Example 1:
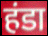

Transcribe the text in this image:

हंडा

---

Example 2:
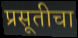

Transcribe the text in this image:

प्रसूतीचा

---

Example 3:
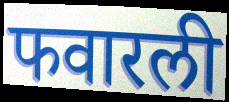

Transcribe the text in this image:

फवारली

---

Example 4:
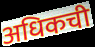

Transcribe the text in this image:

अधिकची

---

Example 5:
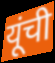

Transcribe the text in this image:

यूंची